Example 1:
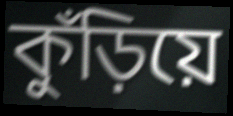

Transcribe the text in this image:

কুঁড়িয়ে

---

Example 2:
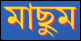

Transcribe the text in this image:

মাছুম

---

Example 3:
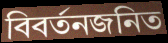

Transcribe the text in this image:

বিবর্তনজনিত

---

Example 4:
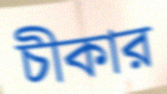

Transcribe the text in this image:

চীকার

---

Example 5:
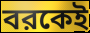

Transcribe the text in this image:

বরকেই